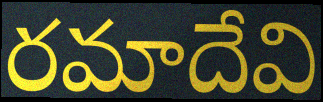
రమాదేవి